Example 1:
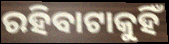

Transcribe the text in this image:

ରହିବାଟାକୁହିଁ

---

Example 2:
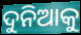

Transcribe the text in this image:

ଦୁନିଆକୁ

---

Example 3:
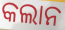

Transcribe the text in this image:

କଲାନ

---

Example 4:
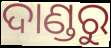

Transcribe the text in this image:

ଦାଣ୍ଡରୁ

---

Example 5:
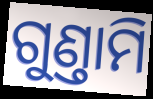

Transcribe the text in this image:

ଗୁଣ୍ତାମି